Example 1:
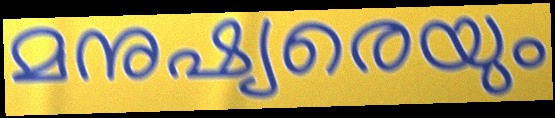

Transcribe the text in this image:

മനുഷ്യരെയും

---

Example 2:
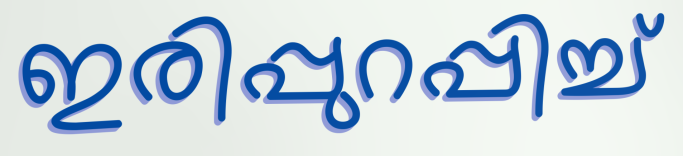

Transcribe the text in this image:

ഇരിപ്പുറപ്പിച്ച്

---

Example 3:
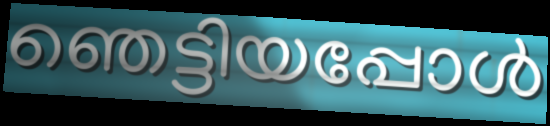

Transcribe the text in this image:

ഞെട്ടിയപ്പോൾ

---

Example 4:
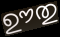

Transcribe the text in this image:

ഊതു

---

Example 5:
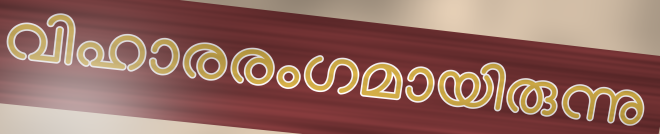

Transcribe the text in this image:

വിഹാരരംഗമായിരുന്നു